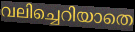
വലിച്ചെറിയാതെ